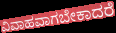
ವಿವಾಹವಾಗಬೇಕಾದರೆ